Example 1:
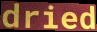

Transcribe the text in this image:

dried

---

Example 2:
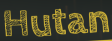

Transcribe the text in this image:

Hutan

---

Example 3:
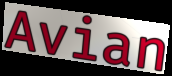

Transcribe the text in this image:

Avian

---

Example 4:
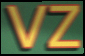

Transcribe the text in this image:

vz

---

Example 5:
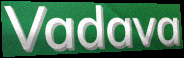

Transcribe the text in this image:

Vadava